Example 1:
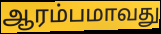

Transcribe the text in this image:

ஆரம்பமாவது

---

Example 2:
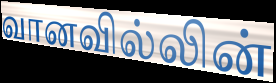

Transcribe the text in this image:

வானவில்லின்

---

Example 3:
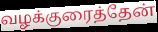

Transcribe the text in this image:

வழக்குரைத்தேன்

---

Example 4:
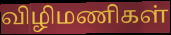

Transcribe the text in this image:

விழிமணிகள்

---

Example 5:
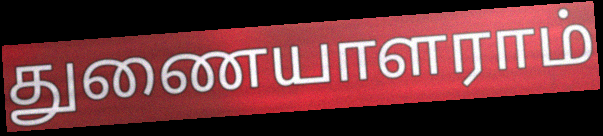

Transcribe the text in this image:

துணையாளராம்